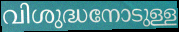
വിശുദ്ധനോടുള്ള